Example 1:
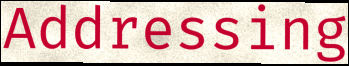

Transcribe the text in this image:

Addressing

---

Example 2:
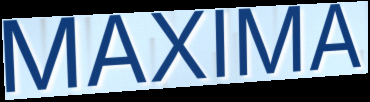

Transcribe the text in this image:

MAXIMA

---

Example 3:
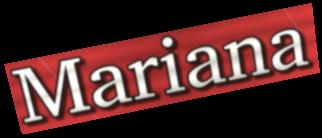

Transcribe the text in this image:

Mariana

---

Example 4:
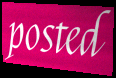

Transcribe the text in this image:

posted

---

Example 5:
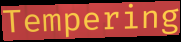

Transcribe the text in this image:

Tempering